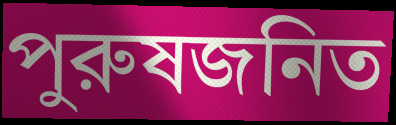
পুরুষজনিত